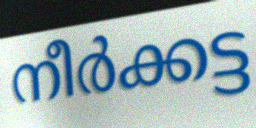
നീർക്കട്ട